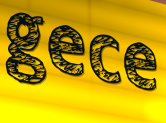
gece